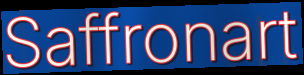
Saffronart